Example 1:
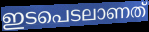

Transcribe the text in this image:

ഇടപെടലാണത്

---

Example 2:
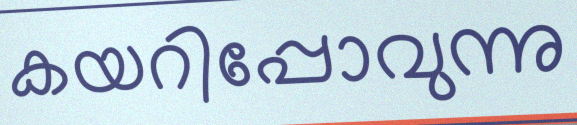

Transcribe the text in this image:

കയറിപ്പോവുന്നു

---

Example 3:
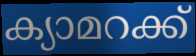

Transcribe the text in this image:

ക്യാമറക്ക്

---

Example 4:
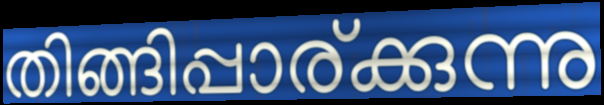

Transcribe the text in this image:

തിങ്ങിപ്പാര്ക്കുന്നു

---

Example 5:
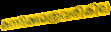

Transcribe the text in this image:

കുന്നിക്കുമത്രവരികില